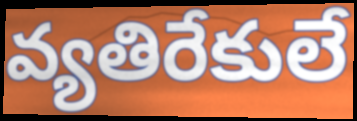
వ్యతిరేకులే